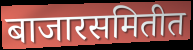
बाजारसमितीत